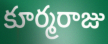
కూర్మరాజు